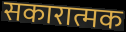
सकारात्‍मक